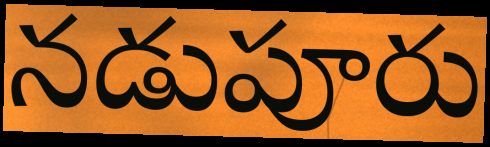
నడుపూరు